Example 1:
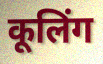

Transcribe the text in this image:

कूलिंग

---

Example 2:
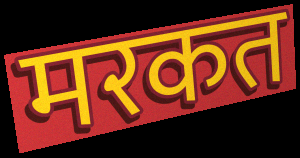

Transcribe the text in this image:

मरकत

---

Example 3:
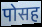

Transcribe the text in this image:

पोसह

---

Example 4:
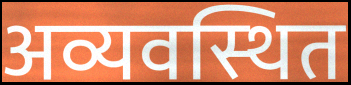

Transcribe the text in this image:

अव्यवस्थित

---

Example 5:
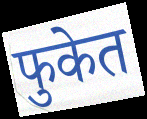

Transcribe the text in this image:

फुकेत